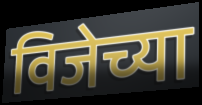
विजेच्या